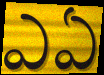
ఎఏ